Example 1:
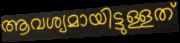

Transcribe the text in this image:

ആവശ്യമായിട്ടുള്ളത്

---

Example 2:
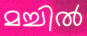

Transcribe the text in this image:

മച്ചിൽ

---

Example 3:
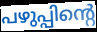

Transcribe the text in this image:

പഴുപ്പിന്റെ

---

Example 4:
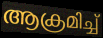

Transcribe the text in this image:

ആക്രമിച്ച്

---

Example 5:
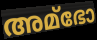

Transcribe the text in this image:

അമ്ഭോ